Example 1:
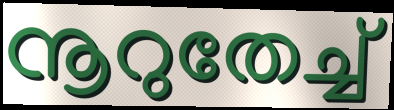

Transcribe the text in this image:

നൂറുതേച്ച്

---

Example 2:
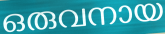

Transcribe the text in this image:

ഒരുവനായ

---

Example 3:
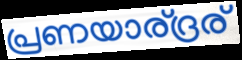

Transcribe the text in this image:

പ്രണയാര്ദ്രര്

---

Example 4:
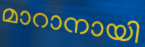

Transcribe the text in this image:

മാറാനായി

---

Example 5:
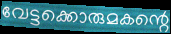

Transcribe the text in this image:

വേട്ടക്കൊരുമകന്റെ